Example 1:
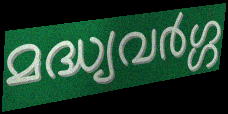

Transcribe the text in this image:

മദ്ധ്യവർഗ്ഗ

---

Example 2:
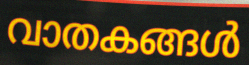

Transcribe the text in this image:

വാതകങ്ങൾ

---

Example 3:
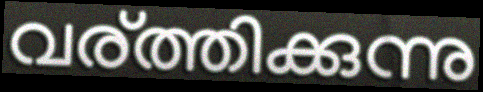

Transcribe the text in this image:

വര്ത്തിക്കുന്നു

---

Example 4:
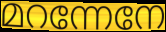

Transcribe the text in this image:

മറന്നേനേ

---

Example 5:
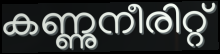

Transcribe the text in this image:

കണ്ണുനീരിറ്റ്